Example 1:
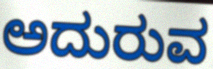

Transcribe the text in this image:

ಅದುರುವ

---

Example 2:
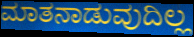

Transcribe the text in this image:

ಮಾತನಾಡುವುದಿಲ್ಲ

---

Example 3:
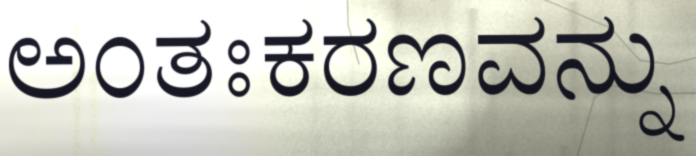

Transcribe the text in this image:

ಅಂತಃಕರಣವನ್ನು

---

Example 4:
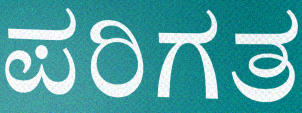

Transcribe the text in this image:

ಪರಿಗತ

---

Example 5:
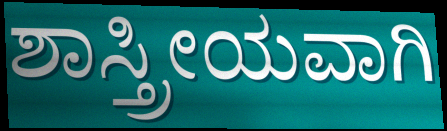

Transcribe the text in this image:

ಶಾಸ್ತ್ರೀಯವಾಗಿ